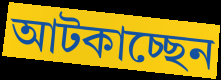
আটকাচ্ছেন